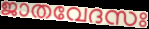
ജാതവേദസഃ